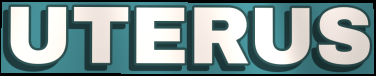
UTERUS